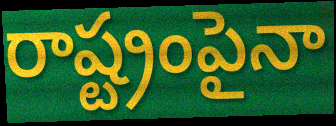
రాష్ట్రంపైనా